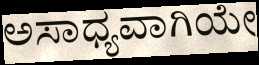
ಅಸಾಧ್ಯವಾಗಿಯೇ